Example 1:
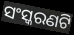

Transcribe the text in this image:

ସଂସ୍କରଣଟି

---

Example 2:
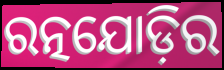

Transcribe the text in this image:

ରତ୍ନଯୋଡ଼ିର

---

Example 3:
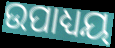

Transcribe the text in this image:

ଉପାଧ୍ୟୟ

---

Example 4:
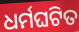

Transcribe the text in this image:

ଧର୍ମଘଟିତ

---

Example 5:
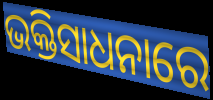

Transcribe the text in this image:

ଭକ୍ତିସାଧନାରେ